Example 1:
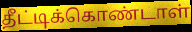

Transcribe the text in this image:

தீட்டிக்கொண்டாள்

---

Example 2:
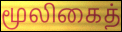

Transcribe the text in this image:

மூலிகைத்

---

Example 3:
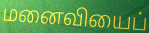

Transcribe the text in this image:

மனைவியைப்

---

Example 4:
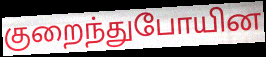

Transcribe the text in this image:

குறைந்துபோயின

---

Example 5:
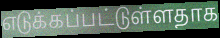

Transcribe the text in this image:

எடுக்கப்பட்டுள்ளதாக